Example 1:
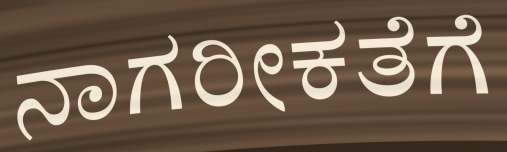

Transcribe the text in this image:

ನಾಗರೀಕತೆಗೆ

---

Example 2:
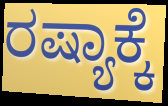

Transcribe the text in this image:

ರಷ್ಯಾಕ್ಕೆ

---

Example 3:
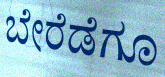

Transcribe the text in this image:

ಬೇರೆಡೆಗೂ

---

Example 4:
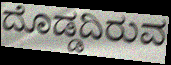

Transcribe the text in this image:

ದೊಡ್ಡದಿರುವ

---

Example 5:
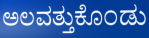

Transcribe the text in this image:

ಅಲವತ್ತುಕೊಂಡು